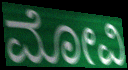
ಮೋವಿ